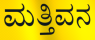
ಮತ್ತಿವನ